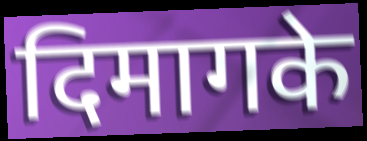
दिमागके